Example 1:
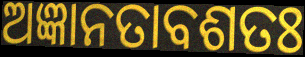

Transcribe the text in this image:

ଅଜ୍ଞାନତାବଶତଃ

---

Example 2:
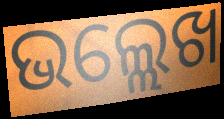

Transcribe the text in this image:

ଭଲ୍ଲେଖ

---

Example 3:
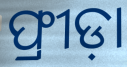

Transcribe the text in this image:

ଫ୍ରୀଡ଼ା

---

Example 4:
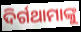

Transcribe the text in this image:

ଦିର୍ଗଥାମାଙ୍କୁ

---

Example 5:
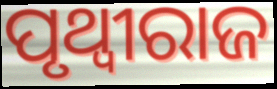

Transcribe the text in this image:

ପୃଥ୍ୱୀରାଜ